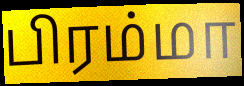
பிரம்மா